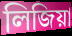
লিজিয়া